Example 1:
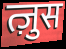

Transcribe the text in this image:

त्ज़ुस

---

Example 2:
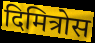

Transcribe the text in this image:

दिमित्रोस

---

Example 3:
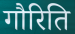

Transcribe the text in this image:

गौरिति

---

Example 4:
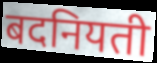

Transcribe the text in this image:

बदनियती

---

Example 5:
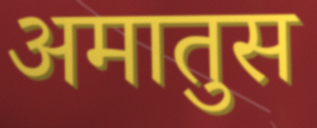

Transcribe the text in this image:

अमातुस